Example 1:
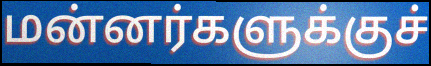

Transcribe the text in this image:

மன்னர்களுக்குச்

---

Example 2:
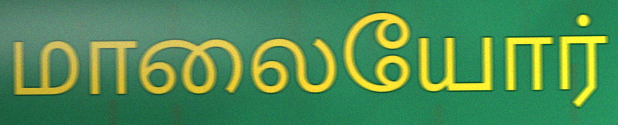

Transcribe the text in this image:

மாலையோர்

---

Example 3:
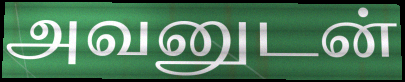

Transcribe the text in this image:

அவனுடன்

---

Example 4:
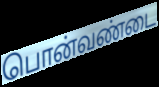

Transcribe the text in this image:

பொன்வண்டை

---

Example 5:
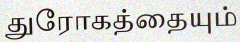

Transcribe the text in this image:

துரோகத்தையும்